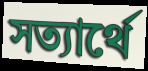
সত্যার্থে